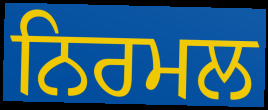
ਨਿਰਮਲ